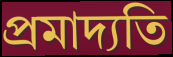
প্রমাদ্যতি